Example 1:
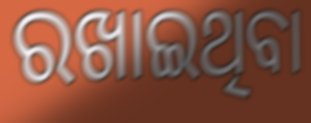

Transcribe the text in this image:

ରଖାଇଥିବା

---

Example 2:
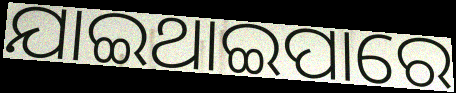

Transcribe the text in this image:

ଯାଇଥାଇପାରେ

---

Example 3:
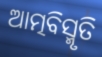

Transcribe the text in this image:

ଆତ୍ମବିସ୍ମୃତି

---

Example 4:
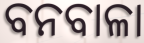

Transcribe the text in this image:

ବନବାଳା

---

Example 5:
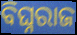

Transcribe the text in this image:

ବିଘ୍ନରାଜ